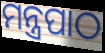
ମନ୍ତ୍ରପାଠ